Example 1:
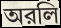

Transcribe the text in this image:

অরলি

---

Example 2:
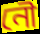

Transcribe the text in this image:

নৌ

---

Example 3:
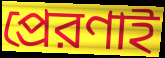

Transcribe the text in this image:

প্রেরণাই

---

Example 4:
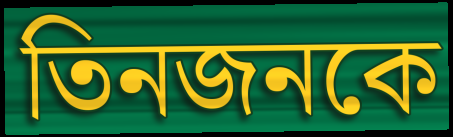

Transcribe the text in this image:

তিনজনকে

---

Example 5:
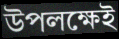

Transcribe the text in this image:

উপলক্ষেই